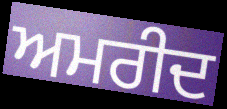
ਅਮਰੀਦ